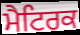
ਮੈਟਿਰਕ